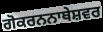
ਗੋਕਰਨਨਾਥੇਸ਼ਵਰ